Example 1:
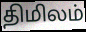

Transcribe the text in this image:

திமிலம்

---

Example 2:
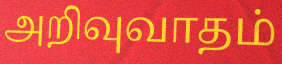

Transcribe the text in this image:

அறிவுவாதம்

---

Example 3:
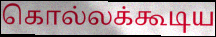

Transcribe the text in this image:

கொல்லக்கூடிய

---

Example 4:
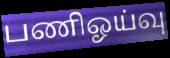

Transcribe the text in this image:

பணிஓய்வு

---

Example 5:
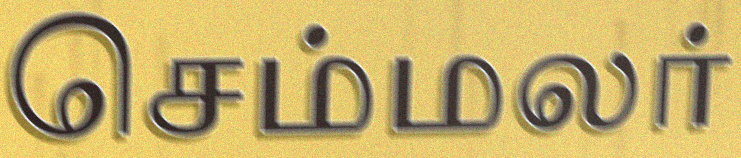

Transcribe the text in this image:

செம்மலர்